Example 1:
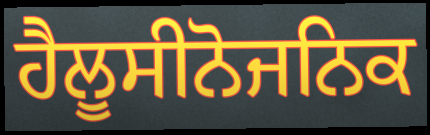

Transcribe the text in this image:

ਹੈਲੂਸੀਨੋਜਨਿਕ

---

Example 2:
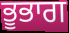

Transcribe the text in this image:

ਭੂਭਾਗ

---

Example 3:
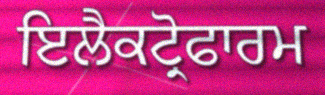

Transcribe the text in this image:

ਇਲੈਕਟ੍ਰੋਫਾਰਮ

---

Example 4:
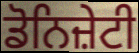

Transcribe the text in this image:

ਡੋਨਿਜ਼ੇਟੀ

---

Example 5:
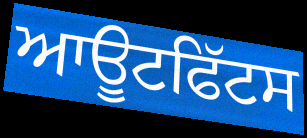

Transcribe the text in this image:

ਆਊਟਫਿੱਟਸ